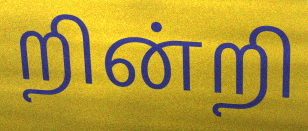
றின்றி